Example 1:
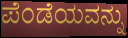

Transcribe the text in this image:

ಪೆಂಡೆಯವನ್ನು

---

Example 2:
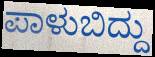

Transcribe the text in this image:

ಪಾಳುಬಿದ್ದು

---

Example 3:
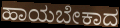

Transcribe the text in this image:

ಹಾಯಬೇಕಾದ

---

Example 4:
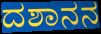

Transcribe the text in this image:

ದಶಾನನ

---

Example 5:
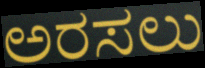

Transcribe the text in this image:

ಅರಸಲು